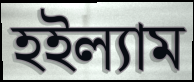
হইল্যাম